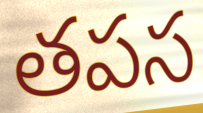
తపస